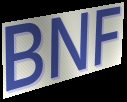
BNF